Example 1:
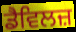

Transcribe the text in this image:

ਡੈਵਿਲਜ਼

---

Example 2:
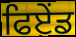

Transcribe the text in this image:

ਫਿਏਂਡ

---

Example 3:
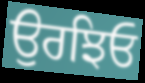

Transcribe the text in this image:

ਉਰਝਿਓ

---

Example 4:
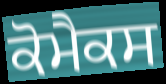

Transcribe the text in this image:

ਕੋਮੈਕਸ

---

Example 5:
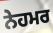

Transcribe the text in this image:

ਨੇਹਮਰ